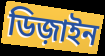
ডিজ়াইন